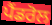
ਪੈਂਡਰੋਲ